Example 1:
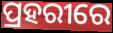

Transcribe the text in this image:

ପ୍ରହରୀରେ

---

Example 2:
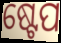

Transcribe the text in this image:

ଷ୍ଟେପ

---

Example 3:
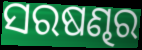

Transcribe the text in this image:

ସରଷଣ୍ଢର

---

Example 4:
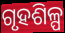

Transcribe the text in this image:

ଗୃହଶିଳ୍ପ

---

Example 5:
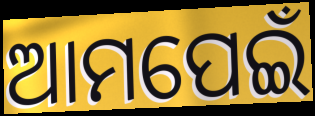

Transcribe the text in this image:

ଆମପେଇଁ